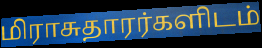
மிராசுதாரர்களிடம்